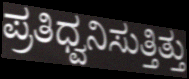
ಪ್ರತಿಧ್ವನಿಸುತ್ತಿತ್ತು